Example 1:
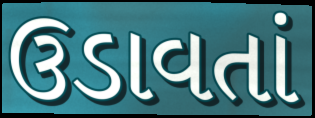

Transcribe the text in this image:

ઉડાવતાં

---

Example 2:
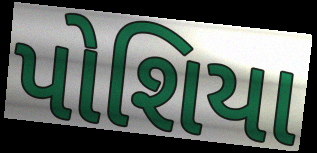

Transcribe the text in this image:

પોશિયા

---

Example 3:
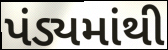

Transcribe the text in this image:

પંડ્યમાંથી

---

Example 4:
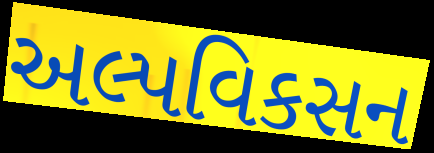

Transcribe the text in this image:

અલ્પવિકસન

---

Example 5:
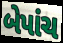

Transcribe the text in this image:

બેપાંચ